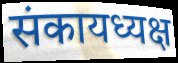
संकायध्यक्ष